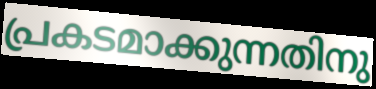
പ്രകടമാക്കുന്നതിനു